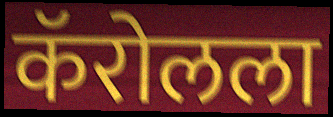
कॅरोलला